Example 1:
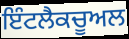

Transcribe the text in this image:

ਇੰਟਲੈਕਚੂਅਲ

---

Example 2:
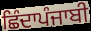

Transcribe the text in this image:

ਛਿੰਦਾਪੰਜਾਬੀ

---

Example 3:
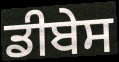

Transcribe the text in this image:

ਡੀਬੇਸ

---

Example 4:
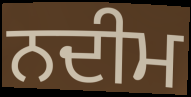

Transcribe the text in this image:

ਨਦੀਮ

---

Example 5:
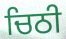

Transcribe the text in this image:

ਚਿਠੀ